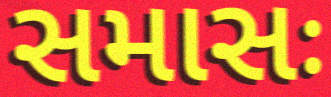
સમાસઃ